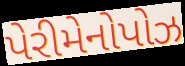
પેરીમેનોપોઝ